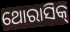
ଥୋରାସିକ୍